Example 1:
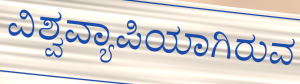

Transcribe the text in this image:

ವಿಶ್ವವ್ಯಾಪಿಯಾಗಿರುವ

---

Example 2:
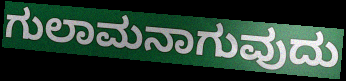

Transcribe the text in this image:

ಗುಲಾಮನಾಗುವುದು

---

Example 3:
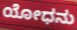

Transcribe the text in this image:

ಯೋಧನು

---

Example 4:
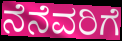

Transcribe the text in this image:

ನೆನೆವರಿಗೆ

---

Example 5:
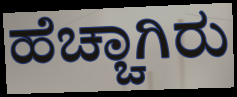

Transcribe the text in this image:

ಹೆಚ್ಚಾಗಿರು